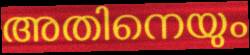
അതിനെയും